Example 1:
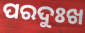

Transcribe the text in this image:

ପରଦୁଃଖ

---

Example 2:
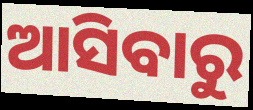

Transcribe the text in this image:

ଆସିବାରୁ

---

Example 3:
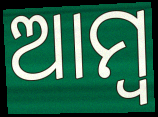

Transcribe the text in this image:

ଆମ୍ୱ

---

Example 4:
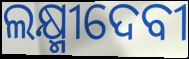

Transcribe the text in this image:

ଲକ୍ଷ୍ମୀଦେବୀ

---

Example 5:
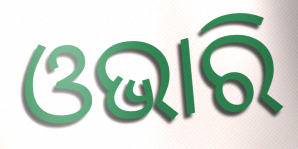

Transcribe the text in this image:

ଓଭାରି